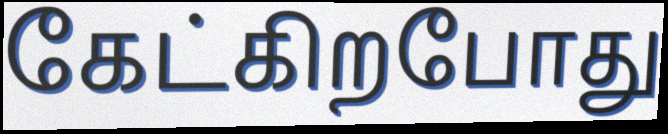
கேட்கிறபோது